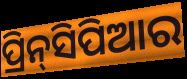
ପ୍ରିନ୍‌ସିପିଆର